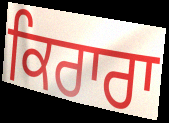
ਕਿਰਾਰਾ